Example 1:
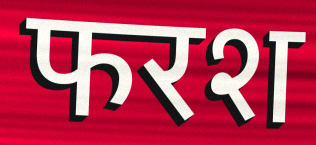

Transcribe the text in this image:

फरश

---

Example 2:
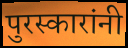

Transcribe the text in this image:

पुरस्कारांनी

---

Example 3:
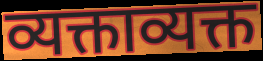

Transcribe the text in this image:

व्यक्ताव्यक्त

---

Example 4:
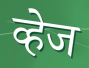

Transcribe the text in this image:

व्हेज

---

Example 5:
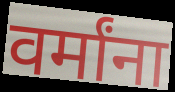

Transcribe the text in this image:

वर्मांना